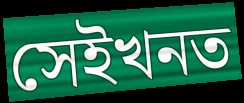
সেইখনত